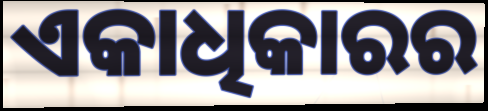
ଏକାଧିକାରର